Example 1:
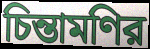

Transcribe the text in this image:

চিন্তামণির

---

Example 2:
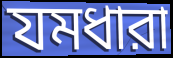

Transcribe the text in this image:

যমধারা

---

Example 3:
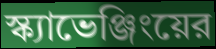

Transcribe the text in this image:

স্ক্যাভেঞ্জিংয়ের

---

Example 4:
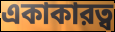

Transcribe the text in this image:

একাকারত্ব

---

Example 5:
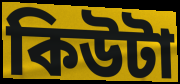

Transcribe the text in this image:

কিউটা